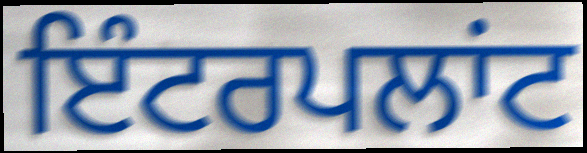
ਇੰਟਰਪਲਾਂਟ